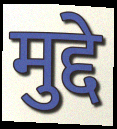
मुद्दे